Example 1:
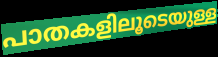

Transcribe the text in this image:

പാതകളിലൂടെയുള്ള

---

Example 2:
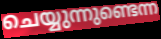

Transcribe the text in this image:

ചെയ്യുന്നുണ്ടെന്ന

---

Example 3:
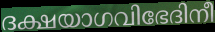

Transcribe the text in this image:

ദക്ഷയാഗവിഭേദിനീ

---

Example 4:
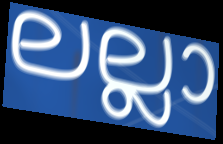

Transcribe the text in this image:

ലല്ലാ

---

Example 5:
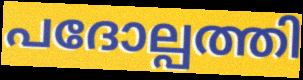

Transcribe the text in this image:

പദോല്പത്തി